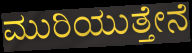
ಮುರಿಯುತ್ತೇನೆ